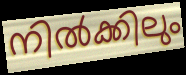
നിൽക്കിലും